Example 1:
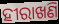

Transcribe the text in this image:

ହୀରାଖଣି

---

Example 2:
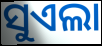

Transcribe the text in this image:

ସୁଏଲା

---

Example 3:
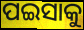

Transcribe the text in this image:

ପଇସାକୁ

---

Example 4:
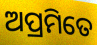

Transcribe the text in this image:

ଅପ୍ରମିତେ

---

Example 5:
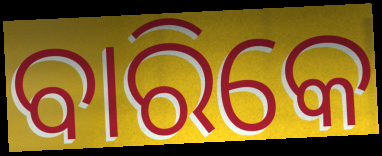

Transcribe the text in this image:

ବାରିକେ